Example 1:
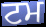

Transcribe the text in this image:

ਟਮ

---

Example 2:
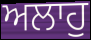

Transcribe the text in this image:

ਅਲਾਹੁ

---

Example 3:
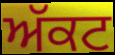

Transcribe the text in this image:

ਅੱਕਟ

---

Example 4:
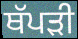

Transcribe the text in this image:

ਥੱਪੜੀ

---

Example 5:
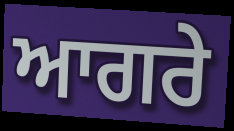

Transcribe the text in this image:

ਆਗਰੇ